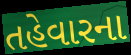
તહેવારના